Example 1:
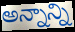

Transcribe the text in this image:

అన్నాన్ని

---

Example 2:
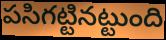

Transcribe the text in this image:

పసిగట్టినట్టుంది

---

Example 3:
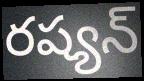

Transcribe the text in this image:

రష్యన్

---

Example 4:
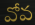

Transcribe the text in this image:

వోవ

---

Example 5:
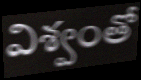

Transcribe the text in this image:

విశ్వంతో